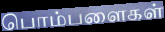
பொம்பளைகள்